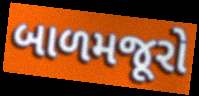
બાળમજૂરો